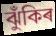
ঝুঁকিৰ